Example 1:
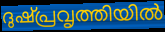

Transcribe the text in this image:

ദുഷ്പ്രവൃത്തിയിൽ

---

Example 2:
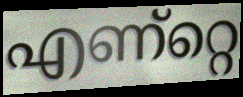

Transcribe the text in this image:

എണ്റ്റെ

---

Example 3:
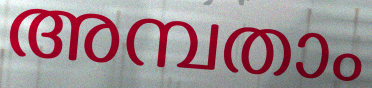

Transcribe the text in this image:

അമ്പതാം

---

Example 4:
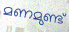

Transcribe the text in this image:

മണമുണ്ട്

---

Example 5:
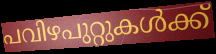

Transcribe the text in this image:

പവിഴപുറ്റുകൾക്ക്